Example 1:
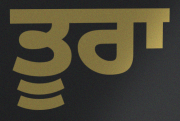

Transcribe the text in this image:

ਤੂਰਾ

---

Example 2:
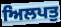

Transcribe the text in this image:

ਅਿਲਪਤੁ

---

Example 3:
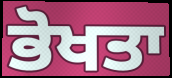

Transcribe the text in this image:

ਭੋਖਤਾ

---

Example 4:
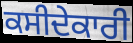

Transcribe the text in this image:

ਕਸੀਦੇਕਾਰੀ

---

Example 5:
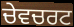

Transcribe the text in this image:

ਚੇਵਚਰਟ